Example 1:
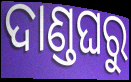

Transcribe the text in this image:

ଦାଣ୍ଡଘରୁ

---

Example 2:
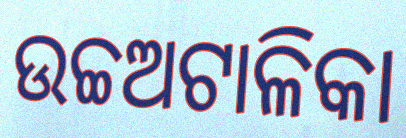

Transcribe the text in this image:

ଉଚ୍ଚଅଟାଳିକା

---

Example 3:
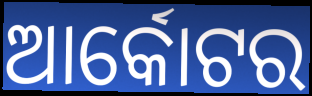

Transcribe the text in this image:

ଆର୍କୋଟର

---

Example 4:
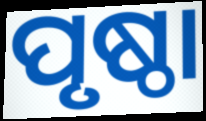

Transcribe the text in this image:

ପୃଷ୍ଠା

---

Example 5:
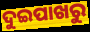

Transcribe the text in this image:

ଦୁଇପାଖରୁ